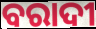
ବରାଦୀ